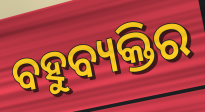
ବହୁବ୍ୟକ୍ତିର